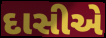
દાસીએ